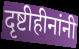
दृष्टीहीनांनी